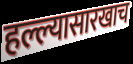
हल्ल्यासारखाच